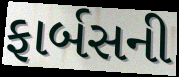
ફાર્બસની